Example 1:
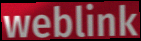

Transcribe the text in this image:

weblink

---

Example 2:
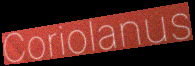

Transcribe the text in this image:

Coriolanus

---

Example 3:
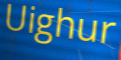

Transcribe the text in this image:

Uighur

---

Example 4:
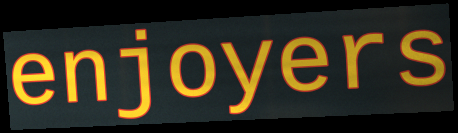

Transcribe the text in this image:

enjoyers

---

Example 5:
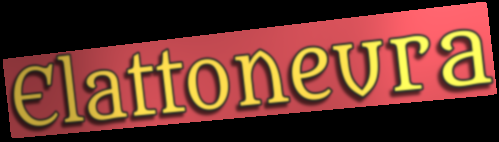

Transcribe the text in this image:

Elattoneura